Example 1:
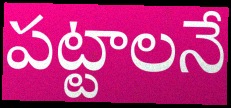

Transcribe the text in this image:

పట్టాలనే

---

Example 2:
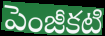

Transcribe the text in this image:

పెంజీకటి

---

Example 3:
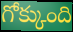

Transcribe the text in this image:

గోక్కుంది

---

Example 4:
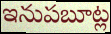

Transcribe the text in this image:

ఇనుపబూట్ల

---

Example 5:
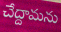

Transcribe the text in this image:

చేద్దామను